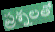
ప్రశ్నలతో